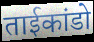
ताईकांडो